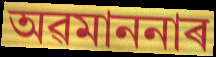
অৱমাননাৰ